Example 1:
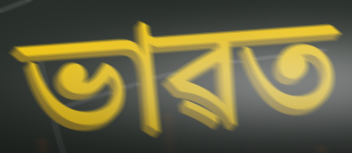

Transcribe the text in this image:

ভাৱত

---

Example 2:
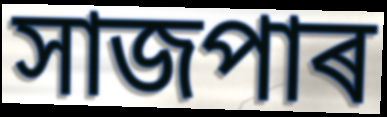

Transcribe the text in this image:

সাজপাৰ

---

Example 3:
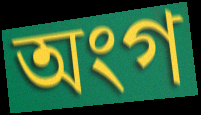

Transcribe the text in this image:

অংগ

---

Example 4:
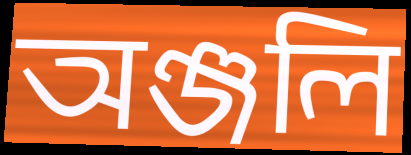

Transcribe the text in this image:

অঞ্জলি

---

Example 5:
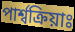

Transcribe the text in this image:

পাৰ্শ্বক্ৰিয়াঃ